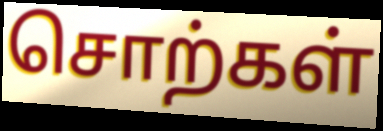
சொற்கள்